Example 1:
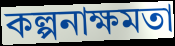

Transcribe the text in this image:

কল্পনাক্ষমতা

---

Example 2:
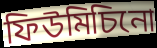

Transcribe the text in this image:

ফিউমিচিনো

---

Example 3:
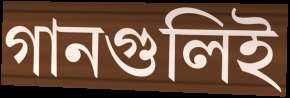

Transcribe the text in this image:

গানগুলিই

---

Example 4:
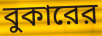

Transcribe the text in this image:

বুকারের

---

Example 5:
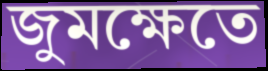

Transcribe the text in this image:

জুমক্ষেতে